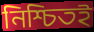
নিশ্চিতই